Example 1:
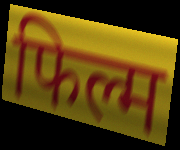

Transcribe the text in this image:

फिल्म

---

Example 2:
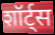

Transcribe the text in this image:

शॉर्ट्स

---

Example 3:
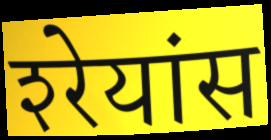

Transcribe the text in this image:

श्रेयांस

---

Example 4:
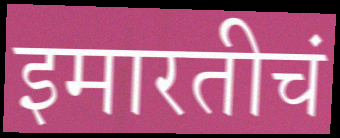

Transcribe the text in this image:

इमारतीचं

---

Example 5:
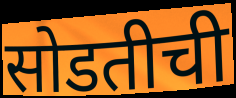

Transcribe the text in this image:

सोडतीची